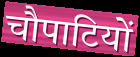
चौपाटियों